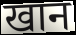
खान